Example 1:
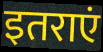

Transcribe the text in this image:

इतराएं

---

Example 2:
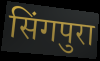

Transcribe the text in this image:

सिंगपुरा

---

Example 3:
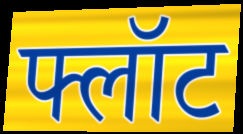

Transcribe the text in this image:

फ्लॉट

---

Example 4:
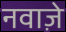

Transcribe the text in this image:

नवाज़े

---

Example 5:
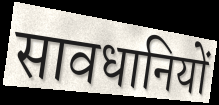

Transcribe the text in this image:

सावधानियों